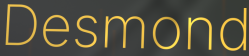
Desmond